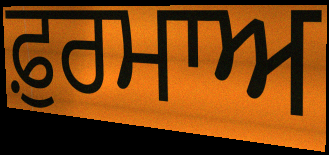
ਫ਼ੁਰਮਾਅ